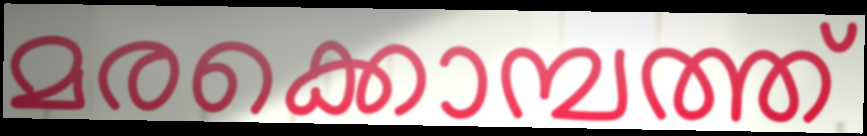
മരക്കൊമ്പത്ത്